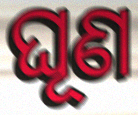
ଘୂଣ